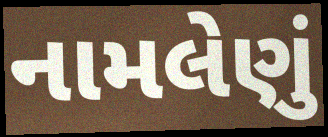
નામલેણું